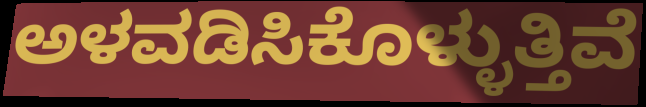
ಅಳವಡಿಸಿಕೊಳ್ಳುತ್ತಿವೆ